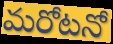
మరోటనో